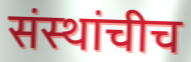
संस्थांचीच